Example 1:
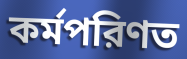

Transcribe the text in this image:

কর্মপরিণত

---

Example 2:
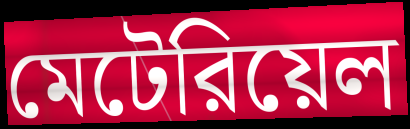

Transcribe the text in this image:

মেটেরিয়েল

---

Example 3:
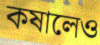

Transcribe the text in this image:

কষালেও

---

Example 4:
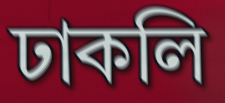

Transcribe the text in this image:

ঢাকলি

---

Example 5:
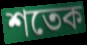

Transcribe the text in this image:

শতেক